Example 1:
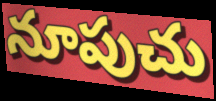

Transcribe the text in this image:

నూపుచు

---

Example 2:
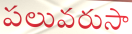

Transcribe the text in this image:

పలువరుసా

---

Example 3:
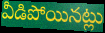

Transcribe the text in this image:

వీడిపోయినట్లు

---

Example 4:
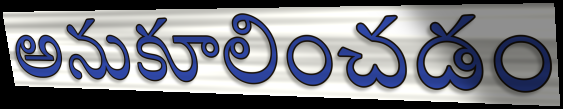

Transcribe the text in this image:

అనుకూలించడం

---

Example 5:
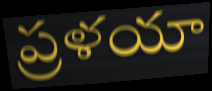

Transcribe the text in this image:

ప్రళయా